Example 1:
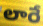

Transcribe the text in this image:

లారే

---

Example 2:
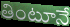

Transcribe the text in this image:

తింటూనే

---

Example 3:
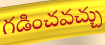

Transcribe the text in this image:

గడించవచ్చు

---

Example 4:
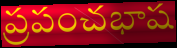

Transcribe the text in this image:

ప్రపంచభాష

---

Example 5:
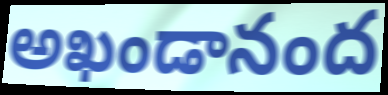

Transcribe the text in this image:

అఖండానంద